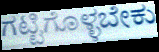
ಗಟ್ಟಿಗೊಳ್ಳಬೇಕು